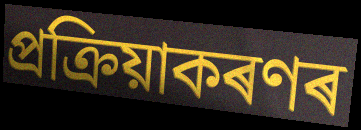
প্ৰক্ৰিয়াকৰণৰ